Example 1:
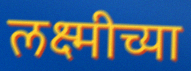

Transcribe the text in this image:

लक्ष्मीच्या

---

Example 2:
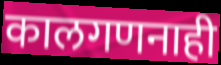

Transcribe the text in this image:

कालगणनाही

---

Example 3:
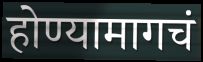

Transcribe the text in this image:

होण्यामागचं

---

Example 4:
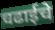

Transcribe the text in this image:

चढाईचे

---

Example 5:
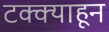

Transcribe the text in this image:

टक्क्याहून